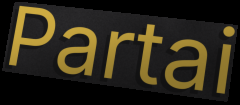
Partai